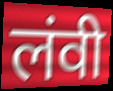
लंवी